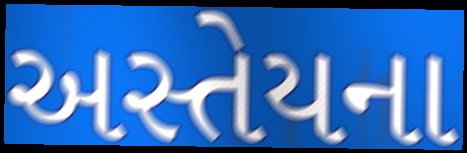
અસ્તેયના